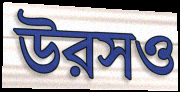
উরসও